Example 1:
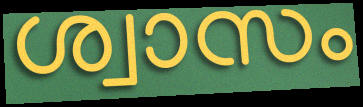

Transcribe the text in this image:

ശ്വാസം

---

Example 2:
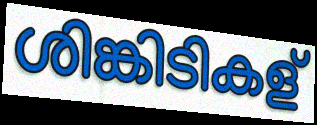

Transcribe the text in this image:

ശിങ്കിടികള്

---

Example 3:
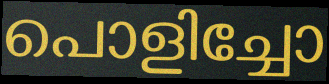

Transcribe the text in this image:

പൊളിച്ചോ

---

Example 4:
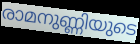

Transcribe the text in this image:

രാമനുണ്ണിയുടെ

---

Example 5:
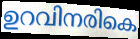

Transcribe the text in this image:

ഉറവിനരികെ